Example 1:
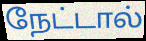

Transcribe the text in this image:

நேட்டால்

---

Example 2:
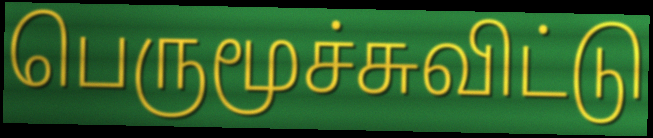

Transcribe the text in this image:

பெருமூச்சுவிட்டு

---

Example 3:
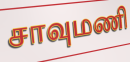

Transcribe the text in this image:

சாவுமணி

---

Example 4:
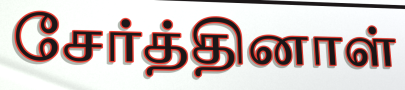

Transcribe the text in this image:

சேர்த்தினாள்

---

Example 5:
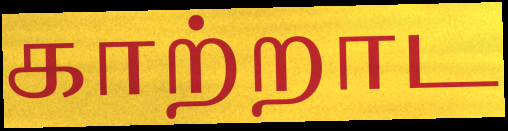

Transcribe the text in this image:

காற்றாட